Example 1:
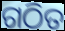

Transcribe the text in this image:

ଗଠିତ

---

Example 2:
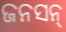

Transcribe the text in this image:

ଜନସନ୍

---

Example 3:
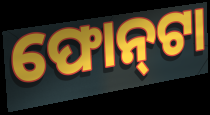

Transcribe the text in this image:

ଫୋନ୍‍ଟା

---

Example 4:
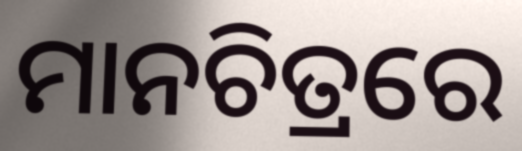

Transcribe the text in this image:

ମାନଚିତ୍ରରେ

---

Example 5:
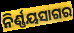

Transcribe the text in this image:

ନିର୍ଣ୍ଣୟସାଗର